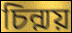
চিন্ময়